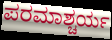
ಪರಮಾಶ್ಚರ್ಯ